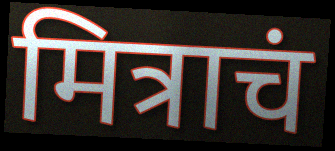
मित्राचं